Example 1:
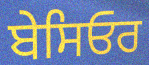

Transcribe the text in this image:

ਬੇਸਿਓਰ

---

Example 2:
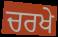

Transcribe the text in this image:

ਚਰਖੇ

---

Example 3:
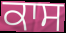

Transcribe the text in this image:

ਕਾਸ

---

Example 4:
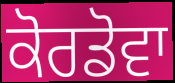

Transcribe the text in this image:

ਕੋਰਡੋਵਾ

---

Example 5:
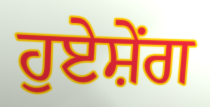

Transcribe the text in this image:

ਹੁਏਸ਼ੇਂਗ